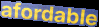
afordable